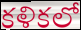
కళికలో